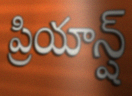
ప్రియాన్ష్